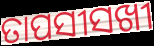
ତାପସୀସଖୀ